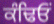
ਕੰਢਿਓਂ